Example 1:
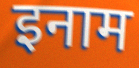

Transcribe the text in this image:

इनाम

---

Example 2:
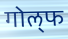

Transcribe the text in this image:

गोल्फ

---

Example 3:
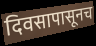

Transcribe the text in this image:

दिवसापासूनच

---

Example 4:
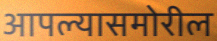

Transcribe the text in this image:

आपल्यासमोरील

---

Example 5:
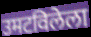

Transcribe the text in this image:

उमटविलेला